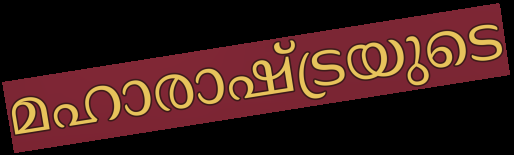
മഹാരാഷ്ട്രയുടെ